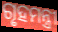
ଗୃହମନ୍ତ୍ରୀ